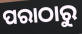
ପରାଠାରୁ